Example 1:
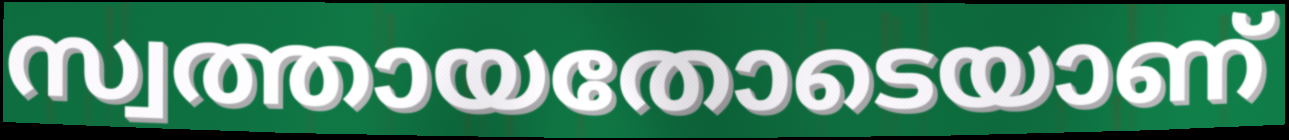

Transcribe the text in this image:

സ്വത്തായതോടെയാണ്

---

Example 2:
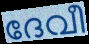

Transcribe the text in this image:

ദേവീ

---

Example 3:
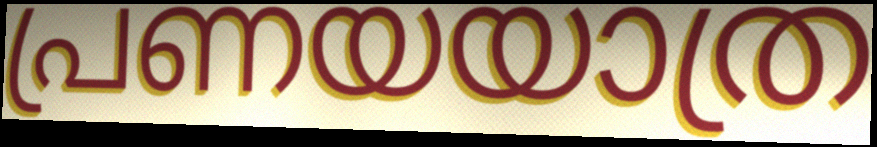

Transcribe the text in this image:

പ്രണയയാത്ര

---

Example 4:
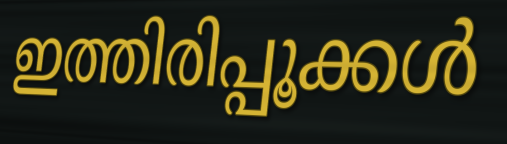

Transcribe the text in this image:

ഇത്തിരിപ്പൂക്കൾ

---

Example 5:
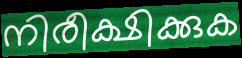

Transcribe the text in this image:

നിരീക്ഷിക്കുക